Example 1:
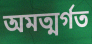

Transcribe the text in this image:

অমত্মর্গত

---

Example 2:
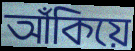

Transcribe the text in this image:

আঁকিয়ে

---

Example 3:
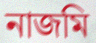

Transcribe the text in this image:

নাজমি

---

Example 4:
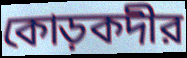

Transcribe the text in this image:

কোড়কদীর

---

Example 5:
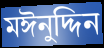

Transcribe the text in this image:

মঈনুদ্দিন